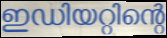
ഇഡിയറ്റിന്റെ